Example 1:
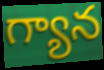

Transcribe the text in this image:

గ్యాన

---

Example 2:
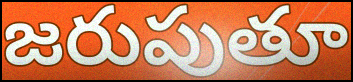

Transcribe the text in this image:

జరుపుతూ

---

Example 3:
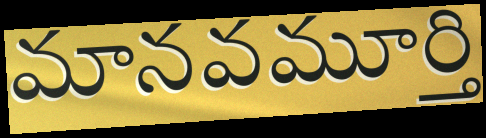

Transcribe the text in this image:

మానవమూర్తి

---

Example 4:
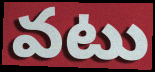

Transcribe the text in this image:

వటు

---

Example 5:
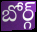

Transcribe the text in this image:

బోర్గ్